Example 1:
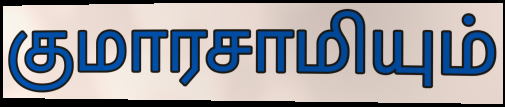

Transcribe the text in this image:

குமாரசாமியும்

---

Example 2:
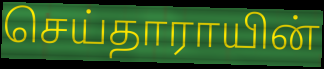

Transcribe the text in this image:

செய்தாராயின்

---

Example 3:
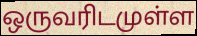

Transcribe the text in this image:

ஒருவரிடமுள்ள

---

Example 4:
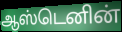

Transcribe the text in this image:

ஆஸ்டெனின்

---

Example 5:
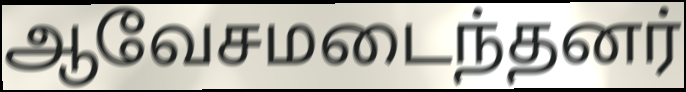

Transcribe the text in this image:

ஆவேசமடைந்தனர்